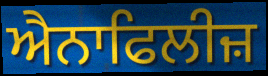
ਐਨਾਫਿਲੀਜ਼